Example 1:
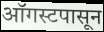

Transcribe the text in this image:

ऑगस्टपासून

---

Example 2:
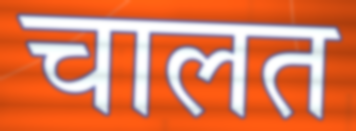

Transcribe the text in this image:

चालत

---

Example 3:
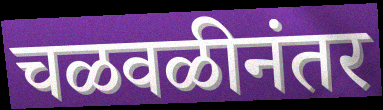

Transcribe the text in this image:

चळवळीनंतर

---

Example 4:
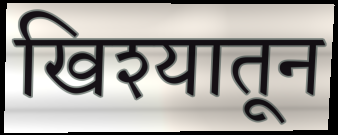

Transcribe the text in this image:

खिश्यातून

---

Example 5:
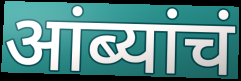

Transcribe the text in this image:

आंब्यांचं